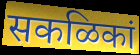
सकळिकां